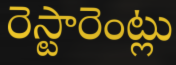
రెస్టారెంట్లు